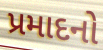
પ્રમાદનો